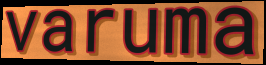
varuma